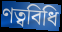
ণত্ববিধি